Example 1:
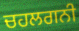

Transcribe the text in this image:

ਚਹਲਗਨੀ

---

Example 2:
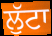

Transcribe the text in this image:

ਲੁੱਟਾ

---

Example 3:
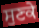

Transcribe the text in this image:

ਸੁਣਕੇ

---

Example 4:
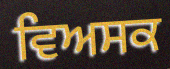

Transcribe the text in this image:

ਵਿਅਸਕ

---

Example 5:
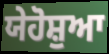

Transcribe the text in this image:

ਯੇਹੋਸ਼ੁਆ